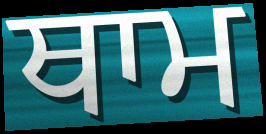
ਥਾਮ